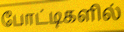
போட்டிகளில்